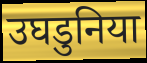
उघडुनिया